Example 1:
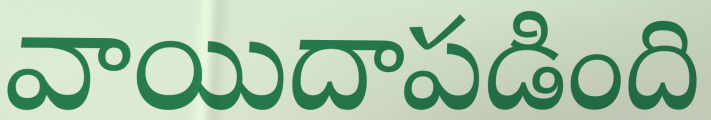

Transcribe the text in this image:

వాయిదాపడింది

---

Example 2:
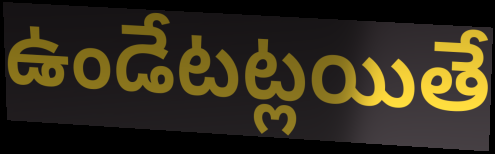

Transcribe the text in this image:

ఉండేటట్లయితే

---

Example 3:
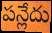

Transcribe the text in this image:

పన్లేదు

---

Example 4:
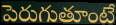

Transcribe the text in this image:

పెరుగుతూంటే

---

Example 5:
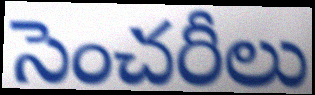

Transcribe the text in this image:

సెంచరీలు